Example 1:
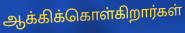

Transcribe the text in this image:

ஆக்கிக்கொள்கிறார்கள்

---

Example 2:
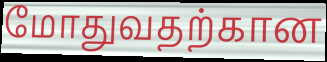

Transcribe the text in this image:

மோதுவதற்கான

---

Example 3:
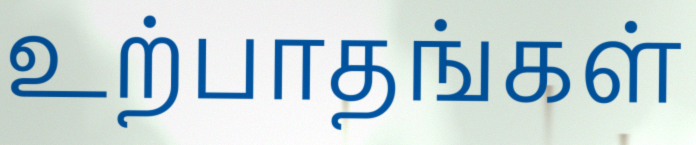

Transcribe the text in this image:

உற்பாதங்கள்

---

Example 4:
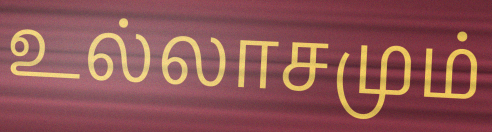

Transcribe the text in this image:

உல்லாசமும்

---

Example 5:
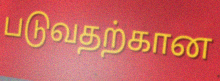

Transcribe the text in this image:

படுவதற்கான